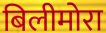
बिलीमोरा